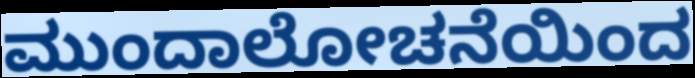
ಮುಂದಾಲೋಚನೆಯಿಂದ